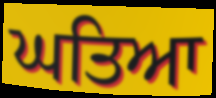
ਘਤਿਆ